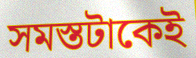
সমস্তটাকেই